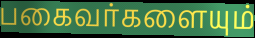
பகைவர்களையும்